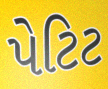
પેટિટ